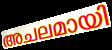
അചലമായി